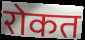
रोकत